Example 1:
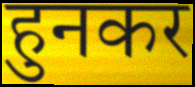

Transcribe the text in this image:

हुनकर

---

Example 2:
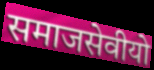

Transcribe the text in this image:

समाजसेवीयो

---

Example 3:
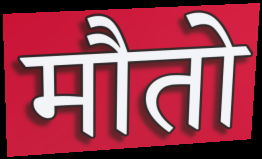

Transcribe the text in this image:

मौतो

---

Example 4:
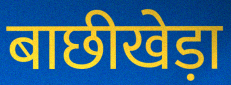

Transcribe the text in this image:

बाछीखेड़ा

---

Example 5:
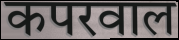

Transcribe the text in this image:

कपरवाल